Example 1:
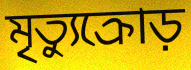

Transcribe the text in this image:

মৃত্যুক্রোড়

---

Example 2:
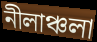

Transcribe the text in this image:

নীলাঞ্চলা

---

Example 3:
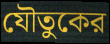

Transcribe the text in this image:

যৌতুকের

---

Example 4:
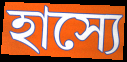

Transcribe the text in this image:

হাস্যে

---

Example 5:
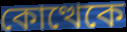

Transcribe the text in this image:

কোত্থেকে